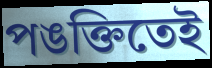
পঙক্তিতেই